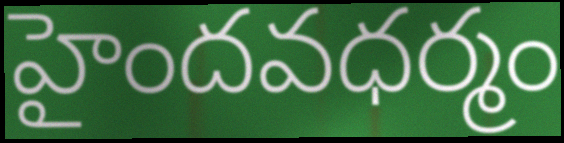
హైందవధర్మం